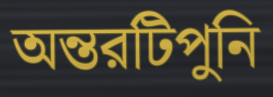
অন্তরটিপুনি